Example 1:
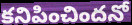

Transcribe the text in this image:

కనిపించిందనో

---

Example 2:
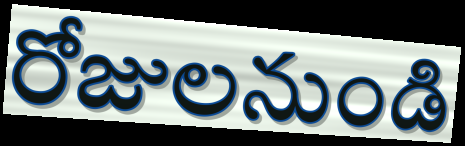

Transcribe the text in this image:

రోజులనుండి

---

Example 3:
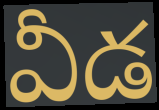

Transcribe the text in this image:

వీడ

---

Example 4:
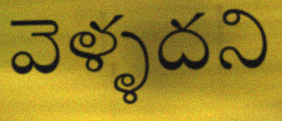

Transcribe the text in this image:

వెళ్ళదని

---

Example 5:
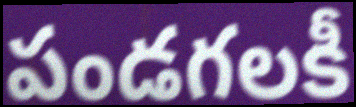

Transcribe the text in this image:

పండగలకీ